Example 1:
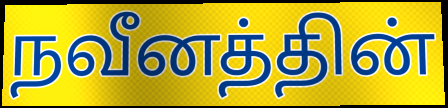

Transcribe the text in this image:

நவீனத்தின்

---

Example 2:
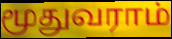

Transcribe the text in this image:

மூதுவராம்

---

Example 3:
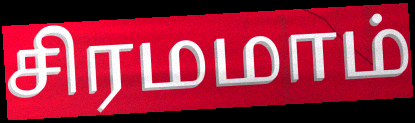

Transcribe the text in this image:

சிரமமாம்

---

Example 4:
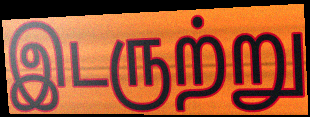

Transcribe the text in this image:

இடருற்று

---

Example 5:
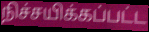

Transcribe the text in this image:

நிச்சயிக்கப்பட்ட